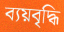
ব্যয়বৃদ্ধি